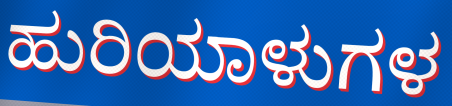
ಹುರಿಯಾಳುಗಳ